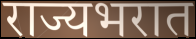
राज्यभरात